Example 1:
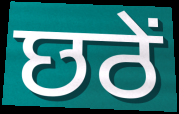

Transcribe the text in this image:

छठें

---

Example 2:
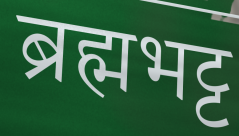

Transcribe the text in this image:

ब्रह्मभट्ट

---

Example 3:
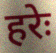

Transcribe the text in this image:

हरेः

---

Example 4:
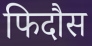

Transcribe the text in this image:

फिदौस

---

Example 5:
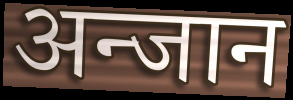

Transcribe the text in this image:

अन्जान